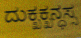
ದುಕ್ಖಕ್ಖನ್ಧಸ್ಸ